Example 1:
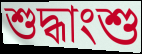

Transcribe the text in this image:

শুদ্ধাংশু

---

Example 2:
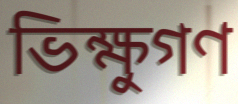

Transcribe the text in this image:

ভিক্ষুগণ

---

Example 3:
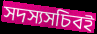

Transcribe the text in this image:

সদস্যসচিবই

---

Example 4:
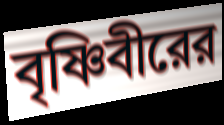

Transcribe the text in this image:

বৃষ্ণিবীরের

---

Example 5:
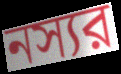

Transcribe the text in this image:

নস্যর